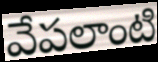
వేపలాంటి